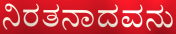
ನಿರತನಾದವನು